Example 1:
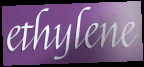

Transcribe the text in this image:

ethylene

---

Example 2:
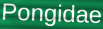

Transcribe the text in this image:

Pongidae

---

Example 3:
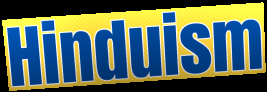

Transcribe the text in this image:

Hinduism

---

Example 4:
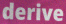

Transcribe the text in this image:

derive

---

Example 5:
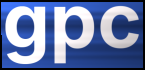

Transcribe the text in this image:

gpc